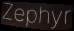
Zephyr